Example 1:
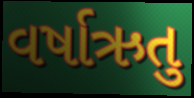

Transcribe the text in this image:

વર્ષાઋતુ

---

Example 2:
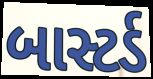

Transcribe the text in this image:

બાસ્ટર્ડ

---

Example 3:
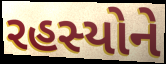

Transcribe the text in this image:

રહસ્યોને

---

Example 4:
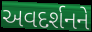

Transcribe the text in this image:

અવદર્શનને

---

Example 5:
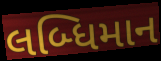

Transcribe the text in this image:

લબ્ધિમાન